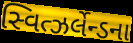
સ્વિત્ઝર્લેન્ડના